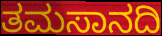
ತಮಸಾನದಿ